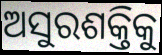
ଅସୁରଶକ୍ତିକୁ